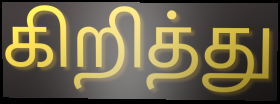
கிறித்து